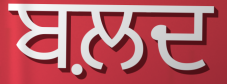
ਬਲ਼ਦ